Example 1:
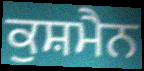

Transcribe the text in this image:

ਕੁਸ਼ਮੈਨ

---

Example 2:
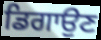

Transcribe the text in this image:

ਡਿਗਾਉਣ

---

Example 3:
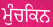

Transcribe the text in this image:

ਮੁੰਚਕਿਨ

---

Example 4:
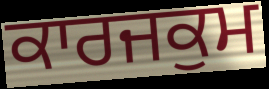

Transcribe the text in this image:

ਕਾਰਜਕੁਮ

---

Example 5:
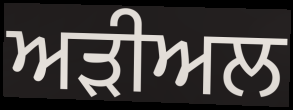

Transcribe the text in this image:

ਅੜੀਅਲ